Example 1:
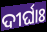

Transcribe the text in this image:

ଦୀର୍ଘାଃ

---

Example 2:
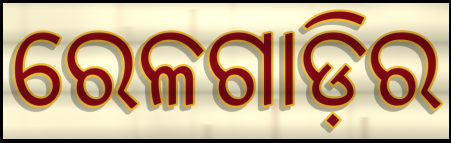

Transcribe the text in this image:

ରେଳଗାଡ଼ିର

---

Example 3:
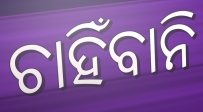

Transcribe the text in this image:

ଚାହିଁବାନି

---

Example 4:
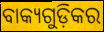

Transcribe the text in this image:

ବାକ୍ୟଗୁଡ଼ିକର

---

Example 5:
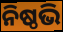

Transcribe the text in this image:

ନିଷ୍ଠଭି